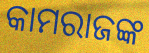
କାମରାଜଙ୍କ